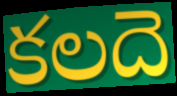
కలదె